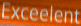
Exceelent